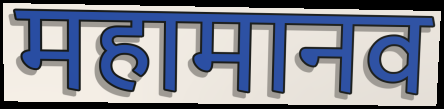
महामानव